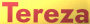
Tereza